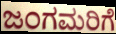
ಜಂಗಮರಿಗೆ